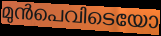
മുൻപെവിടെയോ